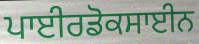
ਪਾਈਰਡੋਕਸਾਈਨ